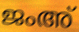
ജംഅ്